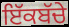
ਇੱਕਬੱਚੇ